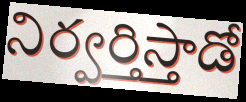
నిర్వర్తిస్తాడో